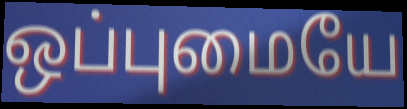
ஒப்புமையே